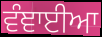
ਵੰਞਾਈਆ